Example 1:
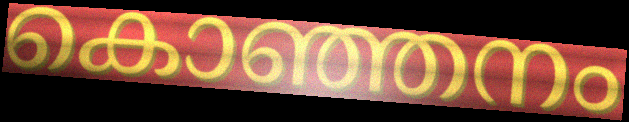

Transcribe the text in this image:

കൊഞ്ഞനം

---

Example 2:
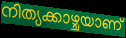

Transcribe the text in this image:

നിത്യക്കാഴ്ചയാണ്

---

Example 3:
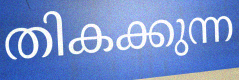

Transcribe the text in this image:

തികക്കുന്ന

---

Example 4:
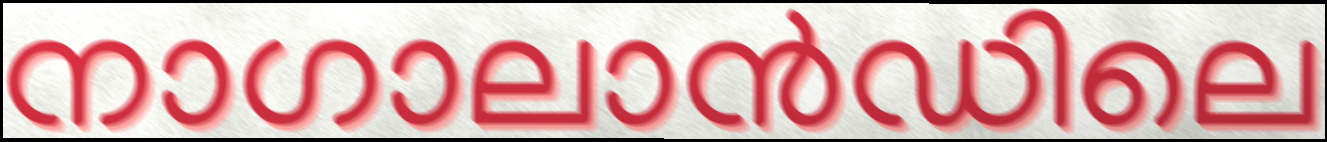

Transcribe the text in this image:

നാഗാലാൻഡിലെ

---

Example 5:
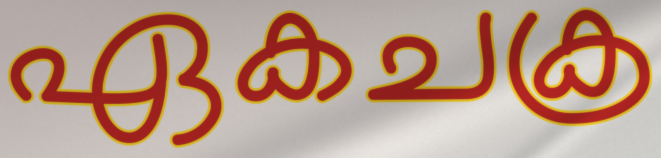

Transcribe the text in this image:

ഏകചക്ര